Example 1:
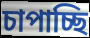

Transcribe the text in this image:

চাপাচ্ছি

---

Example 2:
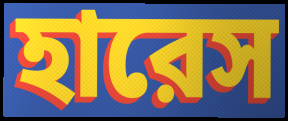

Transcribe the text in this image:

হারেস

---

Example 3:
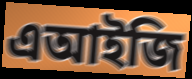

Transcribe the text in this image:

এআইজি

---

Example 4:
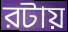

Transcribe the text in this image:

রটায়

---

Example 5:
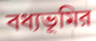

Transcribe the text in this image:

বধ্যভূমির